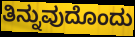
ತಿನ್ನುವುದೊಂದು